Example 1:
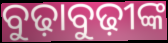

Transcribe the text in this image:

ବୁଢ଼ାବୁଢ଼ୀଙ୍କ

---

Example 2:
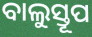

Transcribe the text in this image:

ବାଲୁସ୍ତୂପ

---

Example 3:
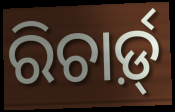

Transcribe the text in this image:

ରିଚାର୍ଡ଼୍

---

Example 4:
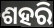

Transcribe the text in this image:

ଶହରି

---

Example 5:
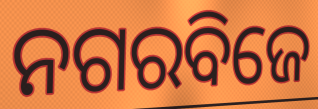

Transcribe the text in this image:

ନଗରବିଜେ